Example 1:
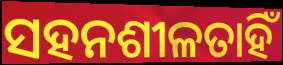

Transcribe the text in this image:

ସହନଶୀଳତାହିଁ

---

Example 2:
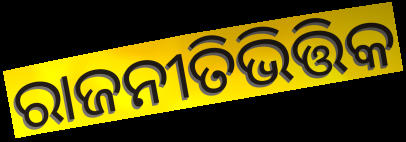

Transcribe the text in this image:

ରାଜନୀତିଭିତ୍ତିକ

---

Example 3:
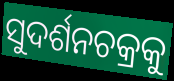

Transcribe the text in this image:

ସୁଦର୍ଶନଚକ୍ରକୁ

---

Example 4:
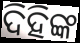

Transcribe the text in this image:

ଦିହିଙ୍କ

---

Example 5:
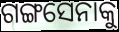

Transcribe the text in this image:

ଗଙ୍ଗସେନାକୁ